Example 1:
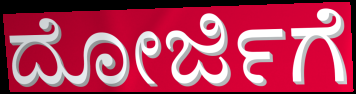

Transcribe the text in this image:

ದೋರ್ಜಿಗೆ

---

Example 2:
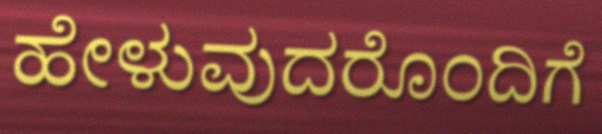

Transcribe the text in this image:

ಹೇಳುವುದರೊಂದಿಗೆ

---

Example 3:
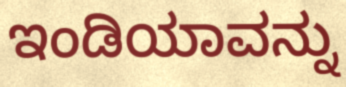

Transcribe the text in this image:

ಇಂಡಿಯಾವನ್ನು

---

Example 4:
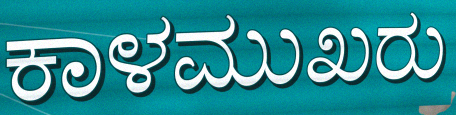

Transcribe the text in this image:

ಕಾಳಮುಖರು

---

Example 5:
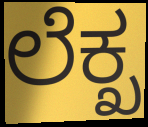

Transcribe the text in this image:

ಲೆಕ್ಖ